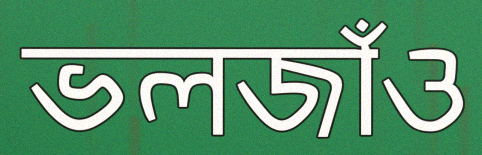
ভলজাঁও